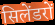
सिलेंडरों